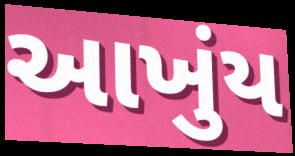
આખુંય